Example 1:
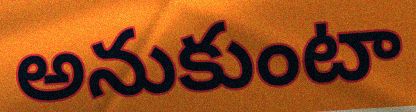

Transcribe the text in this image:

అనుకుంటా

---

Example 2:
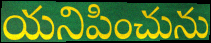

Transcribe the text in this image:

యనిపించును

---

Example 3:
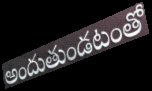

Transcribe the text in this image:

అందుతుండటంతో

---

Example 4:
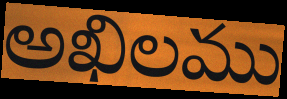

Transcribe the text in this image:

అఖిలము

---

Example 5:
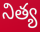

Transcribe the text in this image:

నిత్య